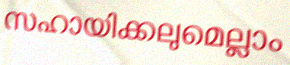
സഹായിക്കലുമെല്ലാം